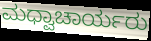
ಮಧ್ವಾಚಾರ್ಯರು